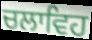
ਚਲਾਵਿਹ